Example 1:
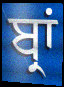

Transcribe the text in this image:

ਬ੍ਰਾਂ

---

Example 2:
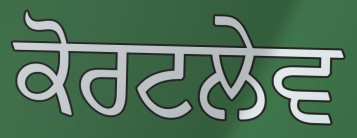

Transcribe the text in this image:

ਕੋਰਟਲੇਵ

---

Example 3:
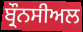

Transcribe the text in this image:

ਬ੍ਰੌਨਸੀਅਲ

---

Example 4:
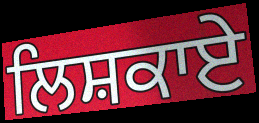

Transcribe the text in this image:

ਲਿਸ਼ਕਾਏ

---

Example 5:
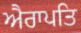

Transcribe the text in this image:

ਐਰਾਪਤਿ